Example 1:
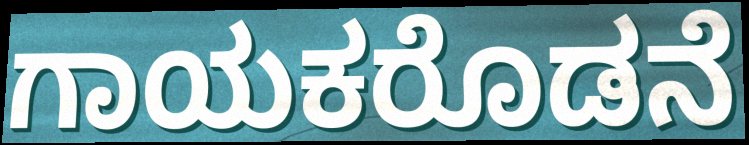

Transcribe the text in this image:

ಗಾಯಕರೊಡನೆ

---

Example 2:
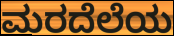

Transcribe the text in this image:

ಮರದೆಲೆಯ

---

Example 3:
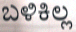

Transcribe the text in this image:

ಬಳಿಕಿಲ್ಲ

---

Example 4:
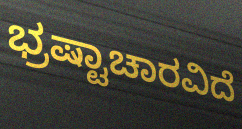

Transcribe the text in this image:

ಭ್ರಷ್ಟಾಚಾರವಿದೆ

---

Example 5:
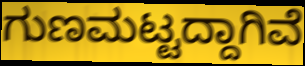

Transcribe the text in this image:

ಗುಣಮಟ್ಟದ್ದಾಗಿವೆ